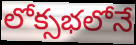
లోక్సభలోనే